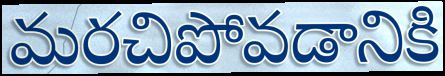
మరచిపోవడానికి